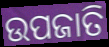
ଉପଜାତି